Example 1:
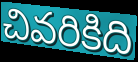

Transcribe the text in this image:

చివరికిది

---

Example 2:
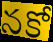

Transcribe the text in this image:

నకో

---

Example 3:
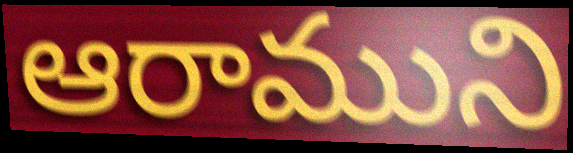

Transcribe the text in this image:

ఆరాముని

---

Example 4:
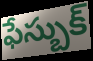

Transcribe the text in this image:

ఫేస్బుక్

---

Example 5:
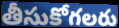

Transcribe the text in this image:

తీసుకోగలరు